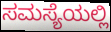
ಸಮಸ್ಯೆಯಲ್ಲಿ